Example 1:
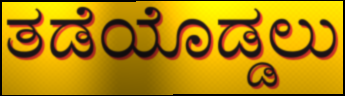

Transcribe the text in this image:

ತಡೆಯೊಡ್ಡಲು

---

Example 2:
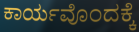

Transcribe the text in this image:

ಕಾರ್ಯವೊಂದಕ್ಕೆ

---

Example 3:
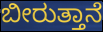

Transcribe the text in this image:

ಬೀರುತ್ತಾನೆ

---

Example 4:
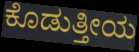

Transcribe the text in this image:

ಕೊಡುತ್ತೀಯ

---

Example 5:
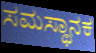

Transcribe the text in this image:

ಸಮಸ್ಥಾನಕ